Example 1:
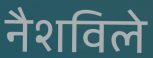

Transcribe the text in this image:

नैशविले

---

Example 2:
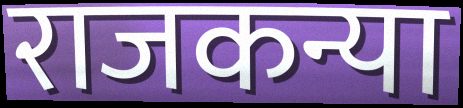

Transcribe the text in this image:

राजकन्या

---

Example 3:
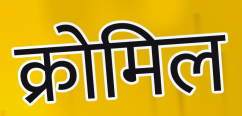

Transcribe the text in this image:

क्रोमिल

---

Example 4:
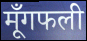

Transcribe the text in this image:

मूँगफली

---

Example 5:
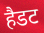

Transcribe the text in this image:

हैडट